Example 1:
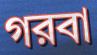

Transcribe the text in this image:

গরবা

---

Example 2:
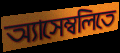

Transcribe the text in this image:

অ্যাসেম্বলিতে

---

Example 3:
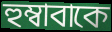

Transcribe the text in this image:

হুম্বাবাকে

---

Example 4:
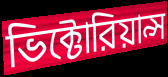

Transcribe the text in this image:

ভিক্টোরিয়ান্স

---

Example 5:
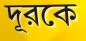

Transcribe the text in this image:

দূরকে